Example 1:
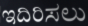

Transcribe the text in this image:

ಇದಿರಿಸಲು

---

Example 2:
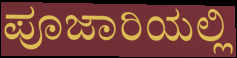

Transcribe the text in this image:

ಪೂಜಾರಿಯಲ್ಲಿ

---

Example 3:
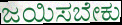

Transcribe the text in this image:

ಜಯಿಸಬೇಕು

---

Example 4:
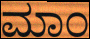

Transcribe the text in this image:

ಮಾಂ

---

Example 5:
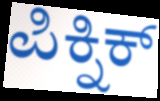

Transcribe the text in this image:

ಪಿಕ್ನಿಕ್